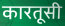
कारतूसी